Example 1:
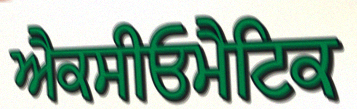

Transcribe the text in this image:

ਐਕਸੀਓਮੈਟਿਕ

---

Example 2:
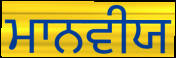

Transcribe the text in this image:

ਮਾਨਵੀਯ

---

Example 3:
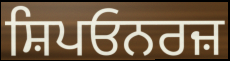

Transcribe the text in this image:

ਸ਼ਿਪਓਨਰਜ਼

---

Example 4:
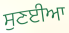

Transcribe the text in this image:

ਸੁਣਈਆ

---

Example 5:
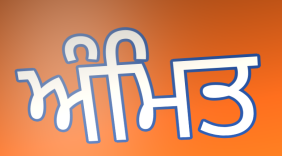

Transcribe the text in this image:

ਅੰਮਿਤ